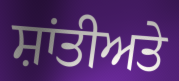
ਸ਼ਾਂਤੀਅਤੇ